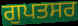
ਗੁਪਤਸਰ